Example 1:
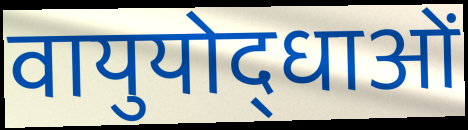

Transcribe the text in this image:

वायुयोद्धाओं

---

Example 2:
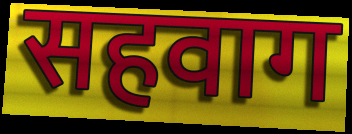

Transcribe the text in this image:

सहवाग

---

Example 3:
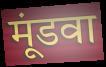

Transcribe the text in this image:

मूंडवा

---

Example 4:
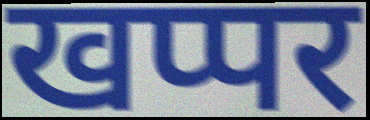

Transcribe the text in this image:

खप्पर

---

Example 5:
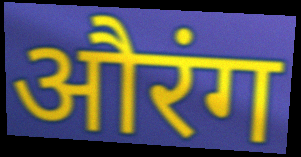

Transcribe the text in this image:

औरंग